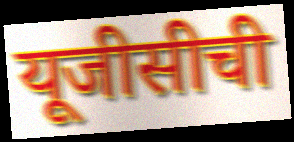
यूजीसीची